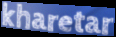
kharetar